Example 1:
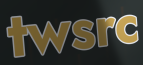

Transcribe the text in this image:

twsrc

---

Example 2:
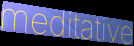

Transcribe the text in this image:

meditative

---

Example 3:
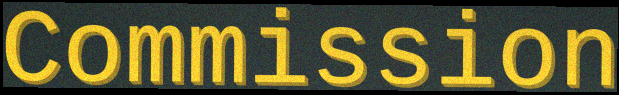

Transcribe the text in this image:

Commission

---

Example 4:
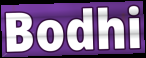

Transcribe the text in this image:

Bodhi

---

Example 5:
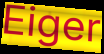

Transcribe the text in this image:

Eiger